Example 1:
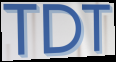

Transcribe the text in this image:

TDT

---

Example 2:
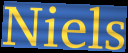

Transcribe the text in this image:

Niels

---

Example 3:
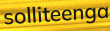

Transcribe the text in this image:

solliteenga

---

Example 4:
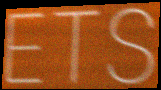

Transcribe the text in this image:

ETS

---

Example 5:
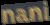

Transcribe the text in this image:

nani